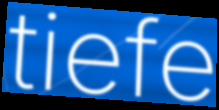
tiefe